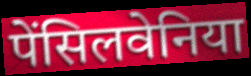
पेंसिलवेनिया